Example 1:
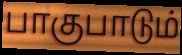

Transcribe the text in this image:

பாகுபாடும்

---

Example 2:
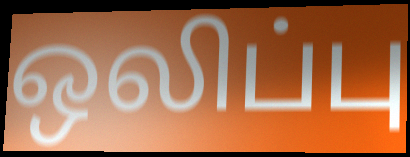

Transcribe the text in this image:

ஒலிப்பு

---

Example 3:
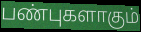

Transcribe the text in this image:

பண்புகளாகும்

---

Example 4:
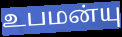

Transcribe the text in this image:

உபமன்யு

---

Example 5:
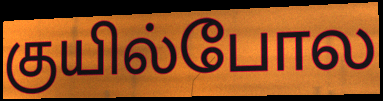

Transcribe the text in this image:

குயில்போல